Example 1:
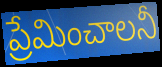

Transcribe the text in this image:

ప్రేమించాలనీ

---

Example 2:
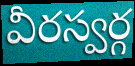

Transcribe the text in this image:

వీరస్వర్గ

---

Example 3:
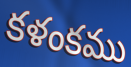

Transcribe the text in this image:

కళంకము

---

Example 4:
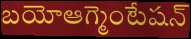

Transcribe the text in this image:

బయోఆగ్మెంటేషన్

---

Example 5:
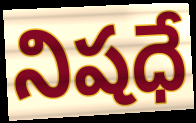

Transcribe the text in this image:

నిషధే